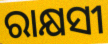
ରାକ୍ଷସୀ